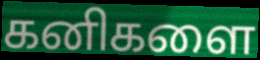
கனிகளை